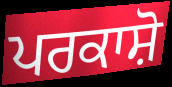
ਪਰਕਾਸ਼ੋ